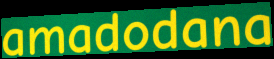
amadodana